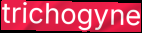
trichogyne